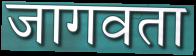
जागवता